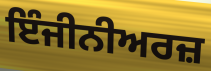
ਇੰਜੀਨੀਅਰਜ਼